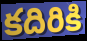
కదిరికి